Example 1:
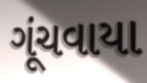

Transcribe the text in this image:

ગૂંચવાયા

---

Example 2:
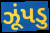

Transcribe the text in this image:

ઝૂંપડુ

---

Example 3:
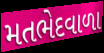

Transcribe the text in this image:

મતભેદવાળા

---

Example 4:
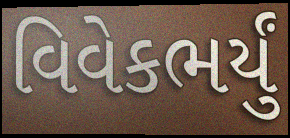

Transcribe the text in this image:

વિવેકભર્યું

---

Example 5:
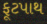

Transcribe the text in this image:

ફૂટપાથ